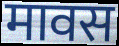
मावस